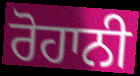
ਰੋਹਾਨੀ